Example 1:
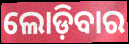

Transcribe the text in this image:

ଲୋଡ଼ିବାର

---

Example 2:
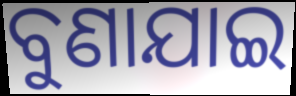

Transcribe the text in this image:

ବୁଣାଯାଇ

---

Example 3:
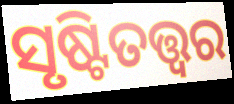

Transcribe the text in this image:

ସୃଷ୍ଟିତତ୍ତ୍ୱର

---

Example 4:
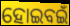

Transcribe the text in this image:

ହୋଇବଇଁ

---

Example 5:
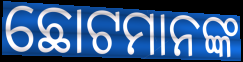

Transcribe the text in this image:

ଛୋଟମାନଙ୍କ